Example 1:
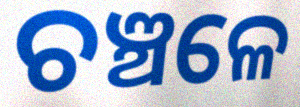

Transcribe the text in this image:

ଚଞ୍ଚଳେ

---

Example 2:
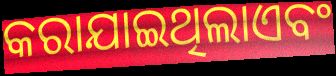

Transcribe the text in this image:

କରାଯାଇଥିଲାଏବଂ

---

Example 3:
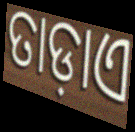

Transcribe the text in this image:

ତାଡ଼ାଏ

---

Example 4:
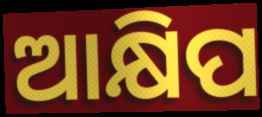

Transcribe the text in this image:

ଆକ୍ଷିପ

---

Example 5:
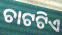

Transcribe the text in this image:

ଚାଟଟିଏ